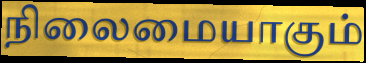
நிலைமையாகும்